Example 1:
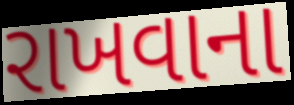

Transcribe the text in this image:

રાખવાના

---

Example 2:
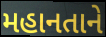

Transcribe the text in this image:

મહાનતાને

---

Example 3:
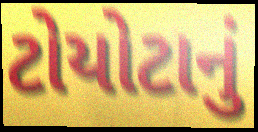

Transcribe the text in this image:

ટોયોટાનું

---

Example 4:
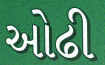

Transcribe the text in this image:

ઓઢી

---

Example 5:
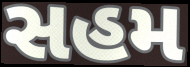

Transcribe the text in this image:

સહમ